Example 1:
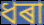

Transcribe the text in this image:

ধৰা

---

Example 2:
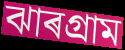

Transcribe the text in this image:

ঝাৰগ্ৰাম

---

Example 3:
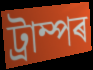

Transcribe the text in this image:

ট্ৰাম্পৰ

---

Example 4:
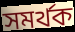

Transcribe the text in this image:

সমৰ্থক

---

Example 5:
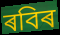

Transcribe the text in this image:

ৰবিৰ